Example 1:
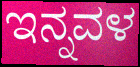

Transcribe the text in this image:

ಇನ್ನವಳ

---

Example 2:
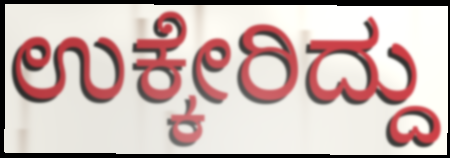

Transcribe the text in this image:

ಉಕ್ಕೇರಿದ್ದು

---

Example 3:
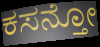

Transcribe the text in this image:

ಕಸನ್ತೋ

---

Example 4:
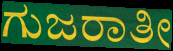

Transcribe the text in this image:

ಗುಜರಾತೀ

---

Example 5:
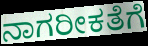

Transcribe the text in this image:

ನಾಗರೀಕತೆಗೆ